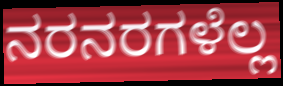
ನರನರಗಳೆಲ್ಲ